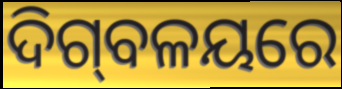
ଦିଗ୍‌ବଳୟରେ